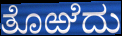
ತೊಱೆದು